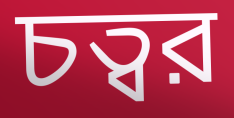
চত্বর